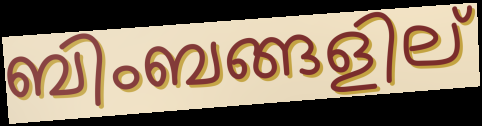
ബിംബങ്ങളില്